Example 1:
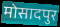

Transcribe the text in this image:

मोसादपुर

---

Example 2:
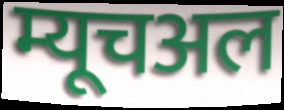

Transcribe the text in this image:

म्यूचअल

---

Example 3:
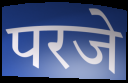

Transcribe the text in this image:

परजे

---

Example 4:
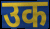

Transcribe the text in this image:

उक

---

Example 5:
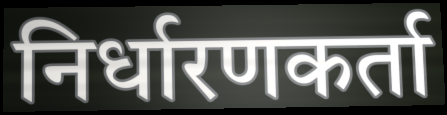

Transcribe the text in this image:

निर्धारणकर्ता